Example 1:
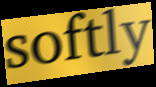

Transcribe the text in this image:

softly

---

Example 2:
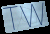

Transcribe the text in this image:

TW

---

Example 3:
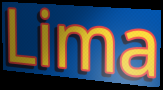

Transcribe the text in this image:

Lima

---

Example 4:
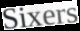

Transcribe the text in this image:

Sixers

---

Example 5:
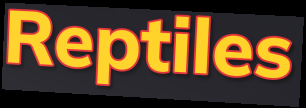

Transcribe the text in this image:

Reptiles